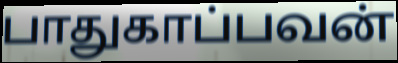
பாதுகாப்பவன்